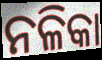
ନଳିକା